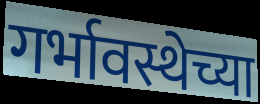
गर्भावस्थेच्या